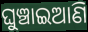
ଘୁଞ୍ଚାଇଆଣି